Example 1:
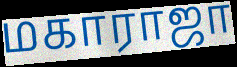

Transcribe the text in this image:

மகாராஜா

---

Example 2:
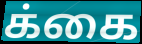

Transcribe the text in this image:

க்கை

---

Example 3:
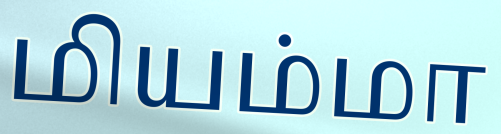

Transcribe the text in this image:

மியம்மா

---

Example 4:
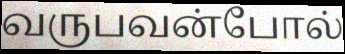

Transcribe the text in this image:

வருபவன்போல்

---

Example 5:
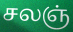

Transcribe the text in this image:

சலஞ்